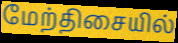
மேற்திசையில்